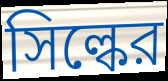
সিল্কের